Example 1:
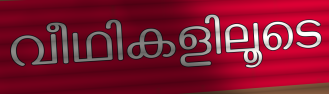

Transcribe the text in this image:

വീഥികളിലൂടെ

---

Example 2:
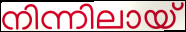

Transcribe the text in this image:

നിന്നിലായ്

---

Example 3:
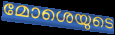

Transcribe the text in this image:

മോശെയുടെ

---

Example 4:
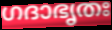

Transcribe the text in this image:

ഗദാഭൃതഃ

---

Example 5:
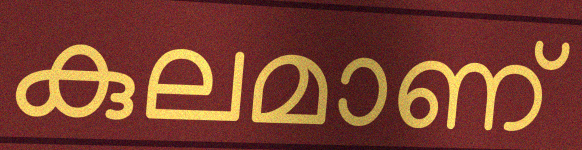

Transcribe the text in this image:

കുലമാണ്